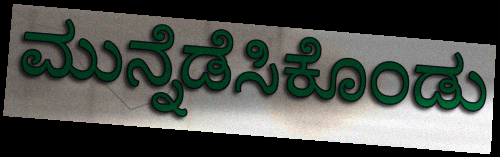
ಮುನ್ನೆಡೆಸಿಕೊಂಡು